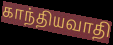
காந்தியவாதி